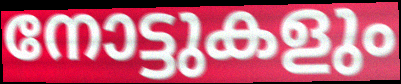
നോട്ടുകളും